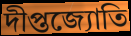
দীপ্তজ্যোতি